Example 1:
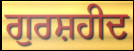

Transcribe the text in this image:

ਗੁਰਸ਼ਹੀਦ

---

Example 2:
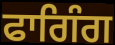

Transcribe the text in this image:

ਫਾਗਿੰਗ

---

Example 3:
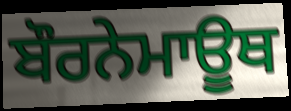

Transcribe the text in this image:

ਬੌਰਨੇਮਾਊਥ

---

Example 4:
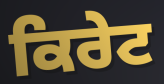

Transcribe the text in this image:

ਕਿਰੇਟ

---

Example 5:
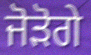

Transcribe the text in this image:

ਜੋੜੋਗੇ